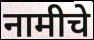
नामीचे